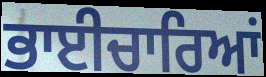
ਭਾਈਚਾਰਿਆਂ